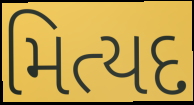
મિત્યદ